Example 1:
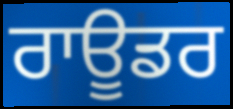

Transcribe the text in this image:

ਰਾਊਡਰ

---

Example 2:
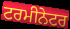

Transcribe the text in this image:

ਟਰਮੀਨੇਟਰ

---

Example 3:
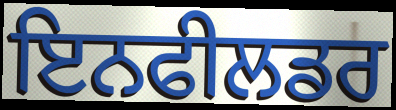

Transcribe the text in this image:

ਇਨਫੀਲਡਰ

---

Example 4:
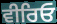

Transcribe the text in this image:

ਵੀਰਿਓ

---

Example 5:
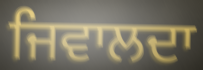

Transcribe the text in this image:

ਜਿਵਾਲਦਾ